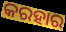
କରହାର